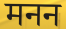
मनन